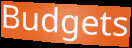
Budgets